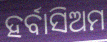
ହର୍ବାସିଅମ